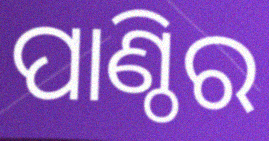
ପାଣ୍ଠିର